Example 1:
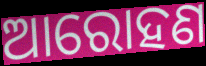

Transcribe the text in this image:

ଆରୋହଣ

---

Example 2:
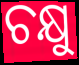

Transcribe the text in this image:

ଚକ୍ଷୁ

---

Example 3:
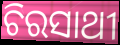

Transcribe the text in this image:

ଚିରସାଥୀ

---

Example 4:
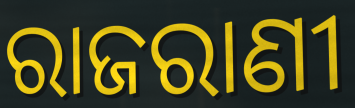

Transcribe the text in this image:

ରାଜରାଣୀ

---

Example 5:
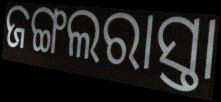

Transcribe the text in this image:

ଜଙ୍ଗଲରାସ୍ତା